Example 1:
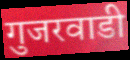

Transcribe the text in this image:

गुजरवाडी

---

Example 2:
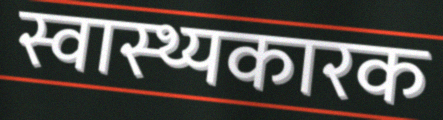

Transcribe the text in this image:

स्वास्थ्यकारक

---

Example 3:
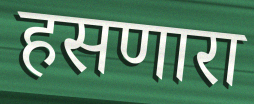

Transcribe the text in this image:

हसणारा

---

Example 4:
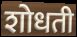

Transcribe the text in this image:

शोधती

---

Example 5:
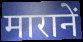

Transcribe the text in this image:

मारानें